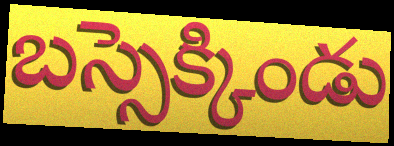
బస్సెక్కిండు